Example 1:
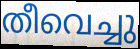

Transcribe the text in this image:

തീവെച്ചു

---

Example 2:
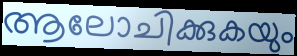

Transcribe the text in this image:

ആലോചിക്കുകയും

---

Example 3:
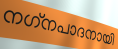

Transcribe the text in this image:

നഗ്‌നപാദനായി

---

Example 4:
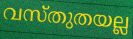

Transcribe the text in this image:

വസ്തുതയല്ല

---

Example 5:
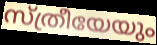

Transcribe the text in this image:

സ്ത്രീയേയും